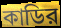
কাডির